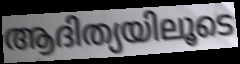
ആദിത്യയിലൂടെ